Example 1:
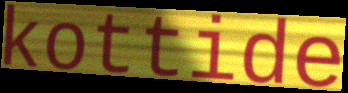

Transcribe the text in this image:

kottide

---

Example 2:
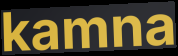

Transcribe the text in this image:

kamna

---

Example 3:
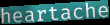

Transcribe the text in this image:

heartache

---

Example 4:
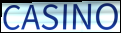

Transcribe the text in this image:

CASINO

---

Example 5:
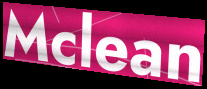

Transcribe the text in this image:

Mclean